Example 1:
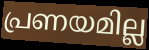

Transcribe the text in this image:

പ്രണയമില്ല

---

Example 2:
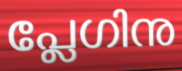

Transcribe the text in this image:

പ്ലേഗിനു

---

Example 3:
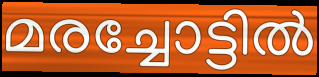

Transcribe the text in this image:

മരച്ചോട്ടിൽ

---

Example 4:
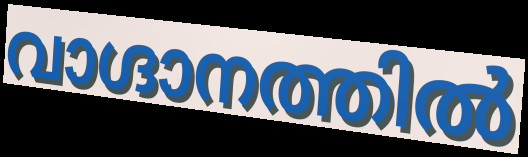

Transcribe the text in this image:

വാഗ്ദാനത്തിൽ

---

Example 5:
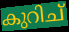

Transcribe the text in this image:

കുറിച്